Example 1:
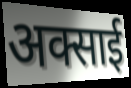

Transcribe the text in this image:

अक्साई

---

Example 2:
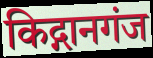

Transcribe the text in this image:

किद्गानगंज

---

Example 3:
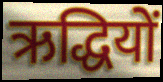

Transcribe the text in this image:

ऋद्धियों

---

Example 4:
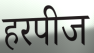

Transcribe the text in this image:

हरपीज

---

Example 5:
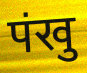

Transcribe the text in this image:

पंखु